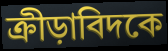
ক্রীড়াবিদকে